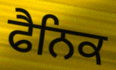
ਫੈਨਿਕ